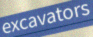
excavators